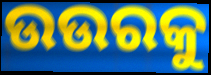
ଉଉରକୁ